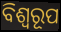
ବିଶ୍ୱରୂପ